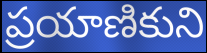
ప్రయాణికుని